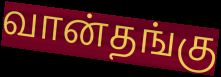
வான்தங்கு